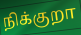
நிக்குறா